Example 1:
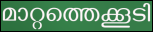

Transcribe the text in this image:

മാറ്റത്തെക്കൂടി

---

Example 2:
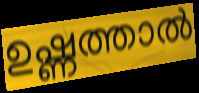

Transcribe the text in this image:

ഉഷ്ണത്താൽ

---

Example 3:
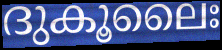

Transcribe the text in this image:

ദുകൂലൈഃ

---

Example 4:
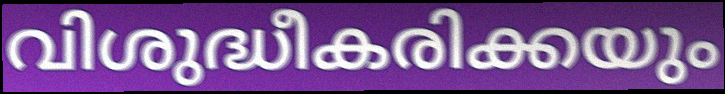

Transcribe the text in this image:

വിശുദ്ധീകരിക്കയും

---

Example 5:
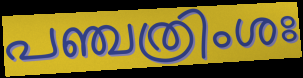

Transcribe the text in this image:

പഞ്ചത്രിംശഃ